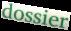
dossier